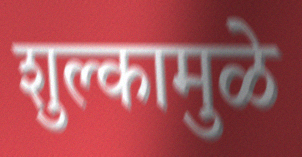
शुल्कामुळे